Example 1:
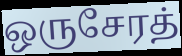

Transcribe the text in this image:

ஒருசேரத்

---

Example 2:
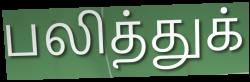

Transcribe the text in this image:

பலித்துக்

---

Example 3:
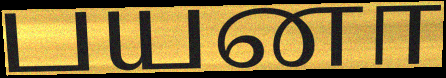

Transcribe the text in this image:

பயனா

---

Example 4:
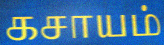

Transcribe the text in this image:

கசாயம்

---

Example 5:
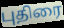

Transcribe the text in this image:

புதிரை